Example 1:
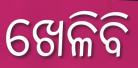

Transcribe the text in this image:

ଖେଳିବି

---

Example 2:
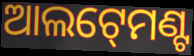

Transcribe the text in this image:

ଆଲଟ୍‍ମେଣ୍ଟ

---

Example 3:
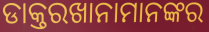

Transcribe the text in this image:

ଡାକ୍ତରଖାନାମାନଙ୍କର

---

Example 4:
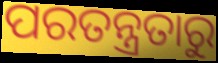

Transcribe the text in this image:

ପରତନ୍ତ୍ରତାରୁ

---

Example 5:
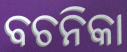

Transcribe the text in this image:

ବଚନିକା